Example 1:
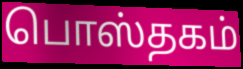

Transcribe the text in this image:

பொஸ்தகம்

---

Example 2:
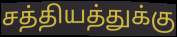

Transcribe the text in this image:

சத்தியத்துக்கு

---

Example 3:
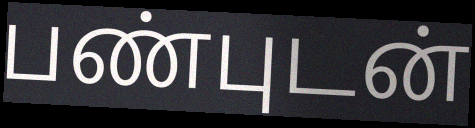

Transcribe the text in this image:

பண்புடன்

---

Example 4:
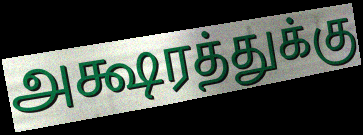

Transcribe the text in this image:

அக்ஷரத்துக்கு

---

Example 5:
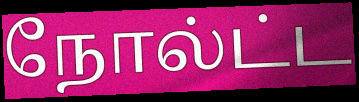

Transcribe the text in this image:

நோல்ட்ட